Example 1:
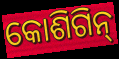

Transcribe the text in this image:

କୋଶିଗିନ୍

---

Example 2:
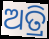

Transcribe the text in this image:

ଅତ୍ରି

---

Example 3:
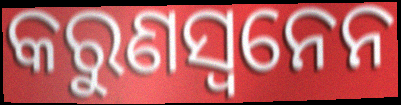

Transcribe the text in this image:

କରୁଣସ୍ଵନେନ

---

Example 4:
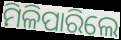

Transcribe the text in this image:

ମିଳିପାରିଲେ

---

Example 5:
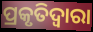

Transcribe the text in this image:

ପ୍ରକୃତିଦ୍ୱାରା